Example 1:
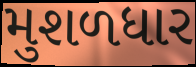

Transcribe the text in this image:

મુશળધાર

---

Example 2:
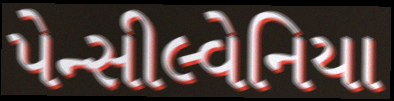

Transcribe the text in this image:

પેન્સીલ્વેનિયા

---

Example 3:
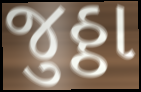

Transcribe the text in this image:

જુઠ્ઠા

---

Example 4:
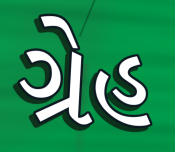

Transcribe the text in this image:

ગ્રેહ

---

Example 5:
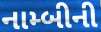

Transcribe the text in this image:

નામ્બીની